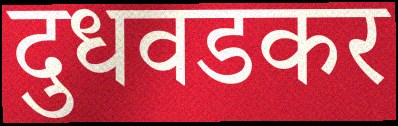
दुधवडकर